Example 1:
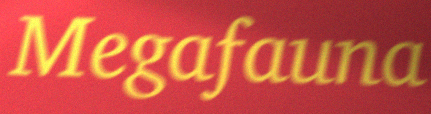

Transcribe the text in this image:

Megafauna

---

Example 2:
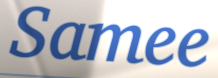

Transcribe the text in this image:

Samee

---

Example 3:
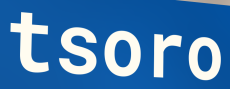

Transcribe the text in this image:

tsoro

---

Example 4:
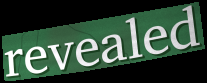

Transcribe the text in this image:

revealed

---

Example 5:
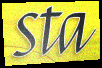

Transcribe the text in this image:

sta